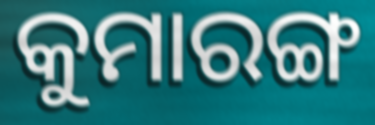
କୁମାରଙ୍ଗ